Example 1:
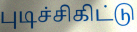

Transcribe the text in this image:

புடிச்சிகிட்டு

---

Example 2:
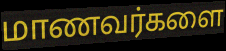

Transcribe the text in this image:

மாணவர்களை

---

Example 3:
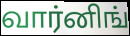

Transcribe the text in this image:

வார்னிங்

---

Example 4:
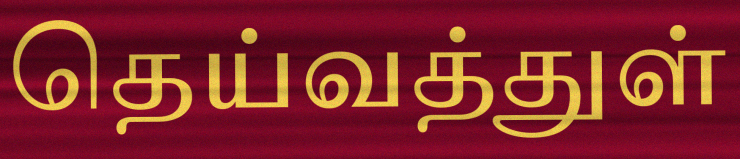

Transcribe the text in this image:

தெய்வத்துள்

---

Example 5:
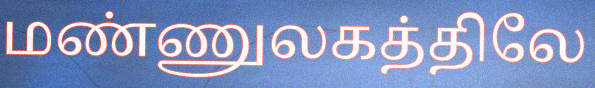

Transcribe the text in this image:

மண்ணுலகத்திலே